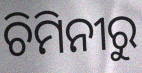
ଚିମିନୀରୁ